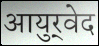
आयुर्वेद